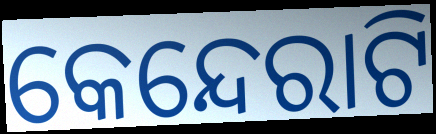
କେନ୍ଦେରାଟି